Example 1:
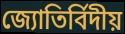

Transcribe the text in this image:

জ্যোতির্বিদীয়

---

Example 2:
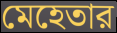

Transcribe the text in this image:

মেহেতার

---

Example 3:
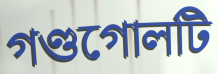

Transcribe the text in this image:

গণ্ডগোলটি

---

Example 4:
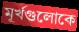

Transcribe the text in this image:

মূর্খগুলোকে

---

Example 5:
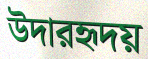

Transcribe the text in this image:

উদারহৃদয়